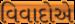
વિવાદોએ